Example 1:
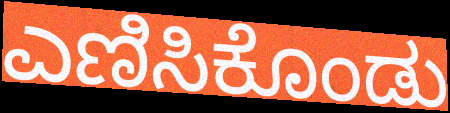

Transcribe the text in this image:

ಎಣಿಸಿಕೊಂಡು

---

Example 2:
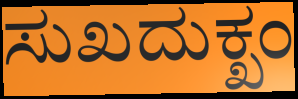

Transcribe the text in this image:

ಸುಖದುಕ್ಖಂ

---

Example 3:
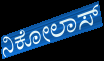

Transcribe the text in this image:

ನಿಕೋಲಾಸ್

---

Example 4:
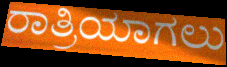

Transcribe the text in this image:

ರಾತ್ರಿಯಾಗಲು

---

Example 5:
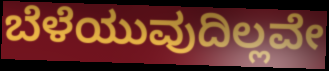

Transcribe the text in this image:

ಬೆಳೆಯುವುದಿಲ್ಲವೇ